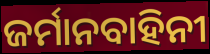
ଜର୍ମାନବାହିନୀ